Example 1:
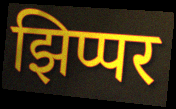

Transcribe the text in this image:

झिप्पर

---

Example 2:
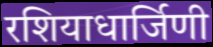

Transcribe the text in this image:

रशियाधार्जिणी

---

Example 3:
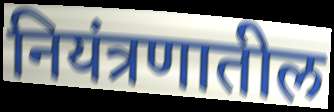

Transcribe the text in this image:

नियंत्रणातील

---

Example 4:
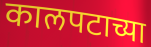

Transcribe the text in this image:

कालपटाच्या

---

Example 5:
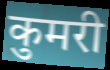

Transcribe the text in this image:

कुमरी